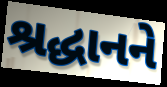
શ્રદ્ધાનને